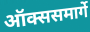
ऑक्ससमार्गे